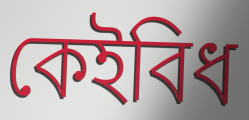
কেইবিধ